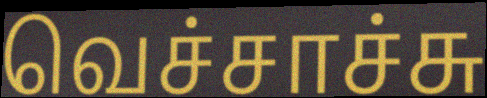
வெச்சாச்சு